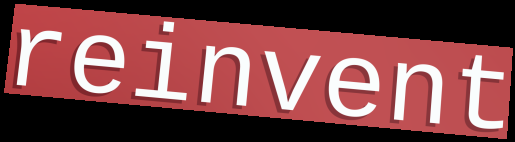
reinvent